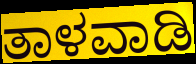
ತಾಳವಾಡಿ